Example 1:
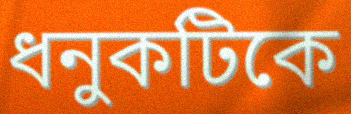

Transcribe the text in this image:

ধনুকটিকে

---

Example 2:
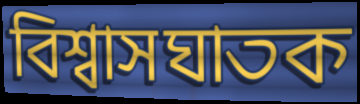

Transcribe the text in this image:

বিশ্বাসঘাতক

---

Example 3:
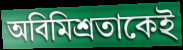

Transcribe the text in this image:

অবিমিশ্রতাকেই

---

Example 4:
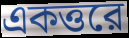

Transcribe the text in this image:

একত্তরে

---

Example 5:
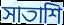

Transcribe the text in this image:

সাতাশি